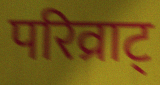
परिव्राट्